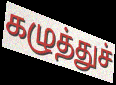
கழுத்துச்